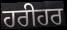
ਹਰੀਹਰ